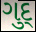
ગુદ્